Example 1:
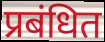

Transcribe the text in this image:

प्रबंधित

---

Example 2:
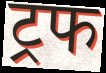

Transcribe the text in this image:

ट्रफ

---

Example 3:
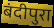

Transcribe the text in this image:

बंदीपुरा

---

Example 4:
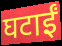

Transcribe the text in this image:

घटाईं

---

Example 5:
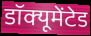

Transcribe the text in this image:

डॉक्यूमेंटेड